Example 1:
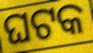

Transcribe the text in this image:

ଘଟକ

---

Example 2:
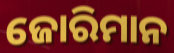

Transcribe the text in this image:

ଜୋରିମାନ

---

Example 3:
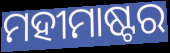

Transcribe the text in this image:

ମହୀମାଷ୍ଟର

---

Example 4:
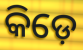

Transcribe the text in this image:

କିଡ଼େ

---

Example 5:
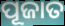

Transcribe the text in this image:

ପୂଜାତ